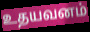
உதயவனம்